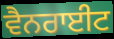
ਵੈਨਰਾਈਟ